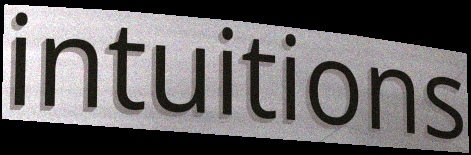
intuitions